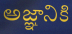
అజ్ఞానికి